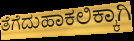
ತೆಗೆದುಹಾಕಲಿಕ್ಕಾಗಿ